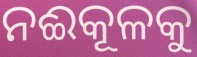
ନଈକୂଳକୁ